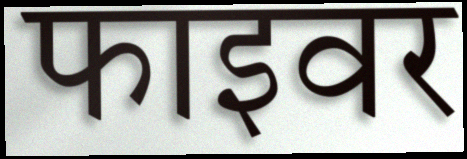
फाइवर